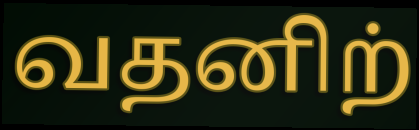
வதனிற்